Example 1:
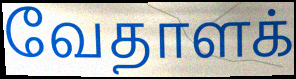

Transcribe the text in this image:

வேதாளக்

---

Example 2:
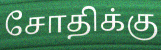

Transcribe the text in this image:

சோதிக்கு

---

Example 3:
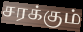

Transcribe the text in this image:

சரக்கும்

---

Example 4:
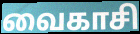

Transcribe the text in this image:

வைகாசி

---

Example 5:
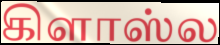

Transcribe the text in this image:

கிளாஸ்ல